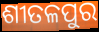
ଶୀତଳପୁର